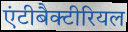
एंटीबैक्टीरियल